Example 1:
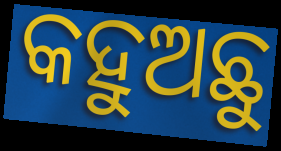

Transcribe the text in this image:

କହୁଅଛୁ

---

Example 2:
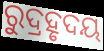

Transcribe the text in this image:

ରୁଦ୍ରହୃଦୟ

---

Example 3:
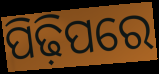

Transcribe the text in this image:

ପିଢ଼ିପରେ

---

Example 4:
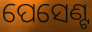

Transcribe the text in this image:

ପେସେଣ୍ଟ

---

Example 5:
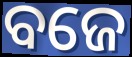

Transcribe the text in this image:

ବଜେ